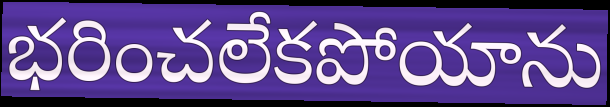
భరించలేకపోయాను